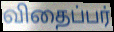
விதைப்பர்